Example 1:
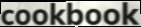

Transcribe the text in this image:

cookbook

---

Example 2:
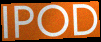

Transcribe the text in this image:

IPOD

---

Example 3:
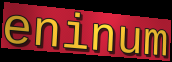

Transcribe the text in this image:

eninum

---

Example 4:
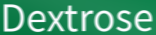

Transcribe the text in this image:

Dextrose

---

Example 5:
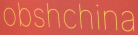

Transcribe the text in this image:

obshchina